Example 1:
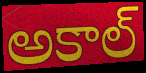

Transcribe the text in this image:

అకాల్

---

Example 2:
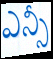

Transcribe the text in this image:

ఎన్సీ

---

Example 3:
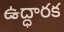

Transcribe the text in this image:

ఉద్ధారక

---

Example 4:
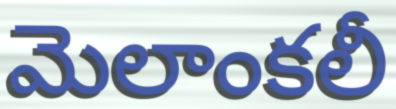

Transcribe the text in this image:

మెలాంకలీ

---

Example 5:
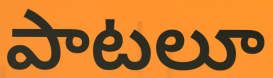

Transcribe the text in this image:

పాటలూ